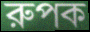
রুপক